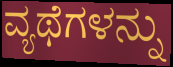
ವ್ಯಥೆಗಳನ್ನು